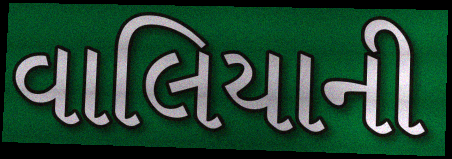
વાલિયાની